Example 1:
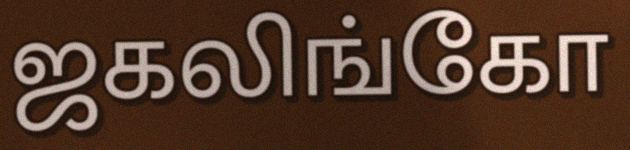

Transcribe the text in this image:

ஜகலிங்கோ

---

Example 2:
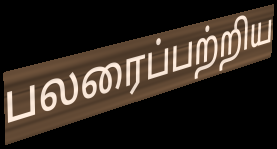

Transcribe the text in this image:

பலரைப்பற்றிய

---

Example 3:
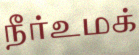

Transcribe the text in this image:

நீர்உமக்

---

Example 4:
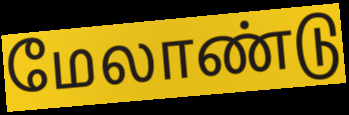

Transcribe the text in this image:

மேலாண்டு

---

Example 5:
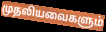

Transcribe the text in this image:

முதலியவைகளும்